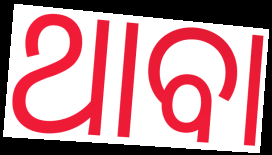
ଥାବା